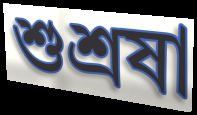
শুশ্রষা